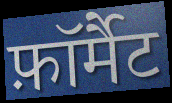
फ़ॉर्मैट